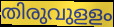
തിരുവുളളം